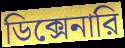
ডিক্সেনারি